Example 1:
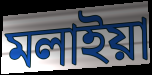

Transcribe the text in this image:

মলাইয়া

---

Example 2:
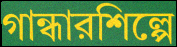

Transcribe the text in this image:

গান্ধারশিল্পে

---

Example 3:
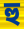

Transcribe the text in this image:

হু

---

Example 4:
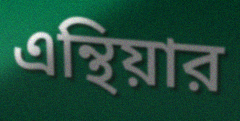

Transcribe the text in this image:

এন্থিয়ার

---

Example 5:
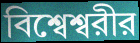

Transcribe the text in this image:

বিশ্বেশ্বরীর